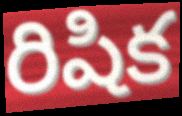
రిషిక